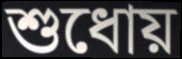
শুধোয়